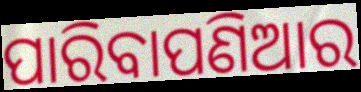
ପାରିବାପଣିଆର